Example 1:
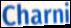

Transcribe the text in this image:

Charni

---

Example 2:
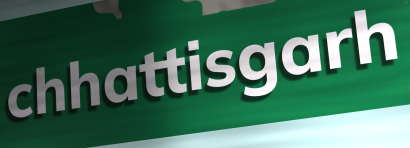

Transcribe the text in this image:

chhattisgarh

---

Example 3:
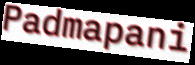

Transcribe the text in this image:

Padmapani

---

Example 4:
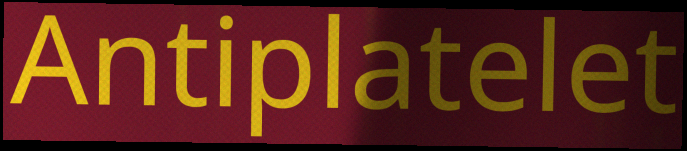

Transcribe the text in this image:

Antiplatelet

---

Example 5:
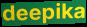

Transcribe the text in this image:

deepika